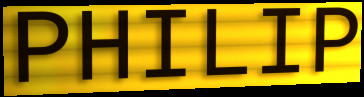
PHILIP